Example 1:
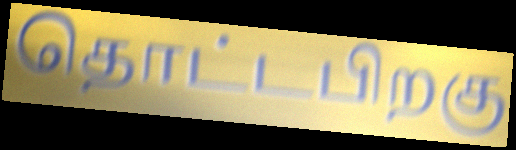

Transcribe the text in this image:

தொட்டபிறகு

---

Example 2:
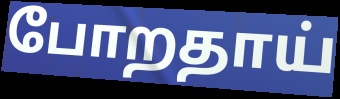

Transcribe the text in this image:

போறதாய்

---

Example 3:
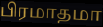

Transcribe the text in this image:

பிரமாதமா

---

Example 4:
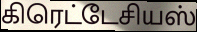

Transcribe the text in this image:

கிரெட்டேசியஸ்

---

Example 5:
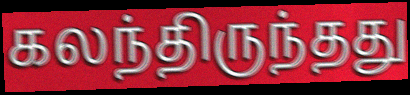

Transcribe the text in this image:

கலந்திருந்தது